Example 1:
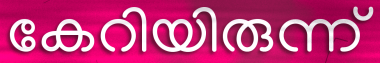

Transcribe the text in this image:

കേറിയിരുന്ന്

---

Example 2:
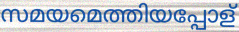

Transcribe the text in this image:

സമയമെത്തിയപ്പോള്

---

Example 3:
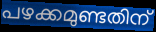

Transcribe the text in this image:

പഴക്കമുണ്ടതിന്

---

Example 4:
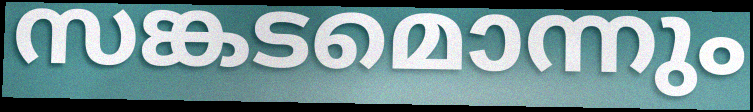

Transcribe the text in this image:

സങ്കടമൊന്നും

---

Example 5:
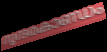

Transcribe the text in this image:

സുന്ദരകാണ്ഡം